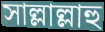
সাল্লাল্লাহু